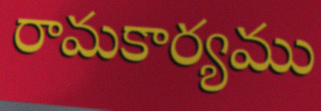
రామకార్యము